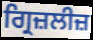
ਗ੍ਰਿਜ਼ਲੀਜ਼